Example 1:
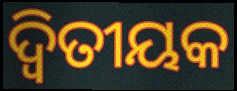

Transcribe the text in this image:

ଦ୍ୱିତୀୟକ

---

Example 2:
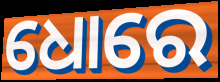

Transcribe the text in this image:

ଧୋରେ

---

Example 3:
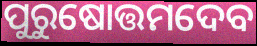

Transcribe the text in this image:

ପୁରୁଷୋତ୍ତମଦେବ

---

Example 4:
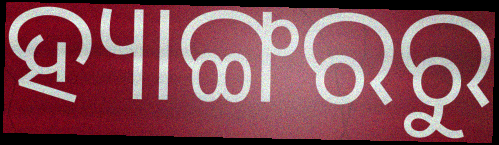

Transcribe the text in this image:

ହ୍ୟାଙ୍ଗରରୁ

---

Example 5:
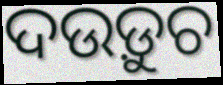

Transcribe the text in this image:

ଦଉଡ଼ୁଚ